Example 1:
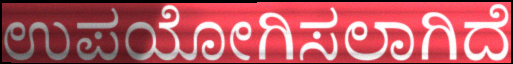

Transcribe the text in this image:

ಉಪಯೋಗಿಸಲಾಗಿದೆ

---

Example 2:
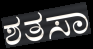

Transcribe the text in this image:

ಶತಸಾ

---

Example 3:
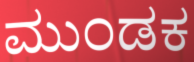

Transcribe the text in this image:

ಮುಂಡಕ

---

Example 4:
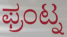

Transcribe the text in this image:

ಫ್ರಂಟ್ನ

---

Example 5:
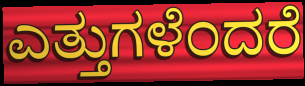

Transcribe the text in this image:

ಎತ್ತುಗಳೆಂದರೆ